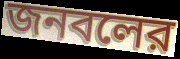
জনবলের